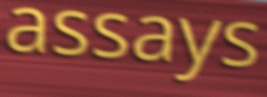
assays